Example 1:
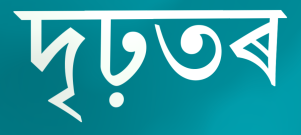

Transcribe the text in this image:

দৃঢ়তৰ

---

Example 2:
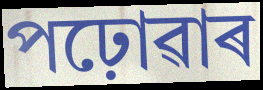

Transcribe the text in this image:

পঢ়োৱাৰ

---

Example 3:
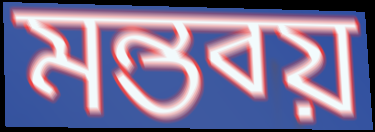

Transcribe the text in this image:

মন্তব্য়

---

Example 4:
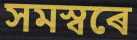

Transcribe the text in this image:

সমস্বৰে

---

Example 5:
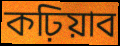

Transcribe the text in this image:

কঢ়িয়াব